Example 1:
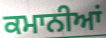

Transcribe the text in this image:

ਕਮਾਨੀਆਂ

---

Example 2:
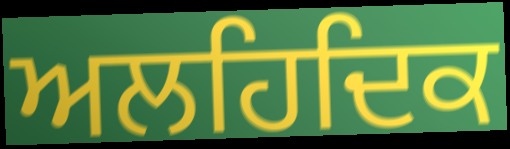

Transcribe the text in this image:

ਅਲਹਿਦਿਕ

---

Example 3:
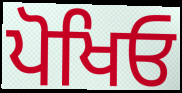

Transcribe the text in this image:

ਪੋਖਿਓ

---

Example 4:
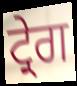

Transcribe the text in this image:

ਟ੍ਰੇਗ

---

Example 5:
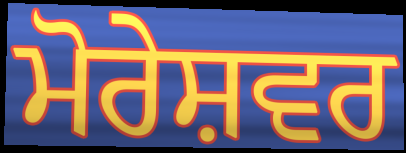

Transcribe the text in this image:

ਮੋਰੇਸ਼ਵਰ